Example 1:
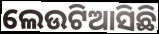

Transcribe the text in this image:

ଲେଉଟିଆସିଛି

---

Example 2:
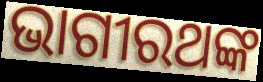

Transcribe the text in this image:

ଭାଗୀରଥଙ୍କ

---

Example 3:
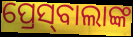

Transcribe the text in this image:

ପ୍ରେସ୍‌ବାଲାଙ୍କ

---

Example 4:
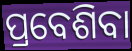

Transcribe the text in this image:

ପ୍ରବେଶିବା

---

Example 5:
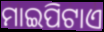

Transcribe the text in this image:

ମାଇପିଟାଏ